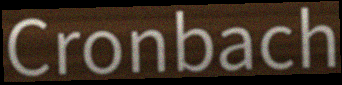
Cronbach